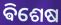
ଵିଶେଷ